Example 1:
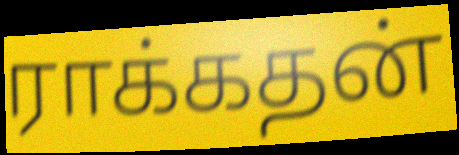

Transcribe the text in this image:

ராக்கதன்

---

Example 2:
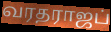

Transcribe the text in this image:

வரதராஜப்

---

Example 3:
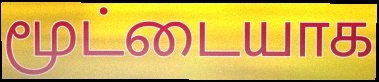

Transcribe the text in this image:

மூட்டையாக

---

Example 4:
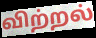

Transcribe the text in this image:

விற்றல்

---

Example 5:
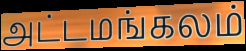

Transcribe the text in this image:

அட்டமங்கலம்